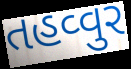
તહવ્વુર